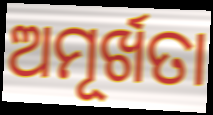
ଅମୂର୍ଖତା